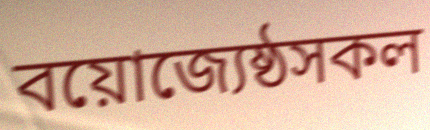
বয়োজ্যেষ্ঠসকল